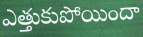
ఎత్తుకుపోయిందా